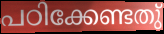
പഠിക്കേണ്ടതു്